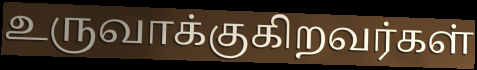
உருவாக்குகிறவர்கள்